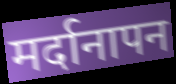
मर्दानापन